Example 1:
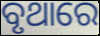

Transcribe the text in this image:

ବୃଥାରେ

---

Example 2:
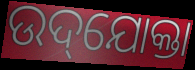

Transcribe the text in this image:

ଉଦ୍‌ଯୋକ୍ତା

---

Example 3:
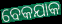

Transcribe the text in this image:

ବେକଯାକ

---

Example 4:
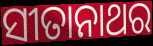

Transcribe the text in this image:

ସୀତାନାଥର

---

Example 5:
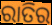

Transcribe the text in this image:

ରାତିର